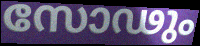
സോഢും